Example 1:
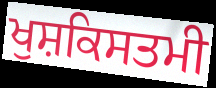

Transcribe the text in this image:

ਖੁਸ਼ਕਿਸਤਮੀ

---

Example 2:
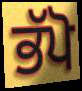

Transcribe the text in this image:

ਭੱਪੋ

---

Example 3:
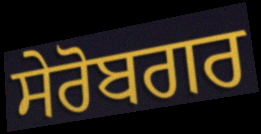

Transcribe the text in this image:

ਸੇਰੋਬਗਰ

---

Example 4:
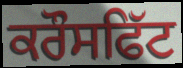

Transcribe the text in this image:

ਕਰੌਸਫਿੱਟ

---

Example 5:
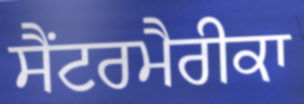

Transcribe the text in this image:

ਸੈਂਟਰਮੈਰੀਕਾ